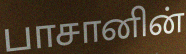
பாசானின்